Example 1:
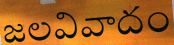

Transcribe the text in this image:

జలవివాదం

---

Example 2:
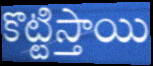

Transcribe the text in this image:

కొట్టిస్తాయి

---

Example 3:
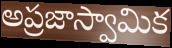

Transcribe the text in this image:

అప్రజాస్వామిక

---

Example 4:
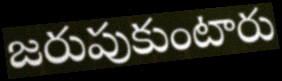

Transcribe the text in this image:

జరుపుకుంటారు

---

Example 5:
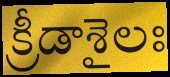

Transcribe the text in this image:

క్రీడాశైలః